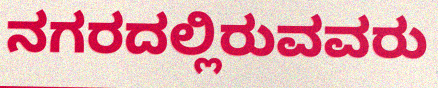
ನಗರದಲ್ಲಿರುವವರು